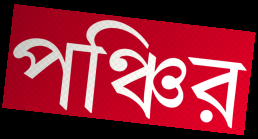
পঞ্চির